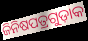
ଜିନିଷପତ୍ରଗୁଡ଼ାକ